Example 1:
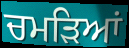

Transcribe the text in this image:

ਚਮੜਿਆਂ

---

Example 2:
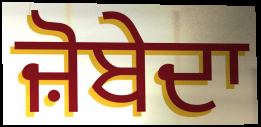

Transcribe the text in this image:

ਜ਼ੋਬੇਦਾ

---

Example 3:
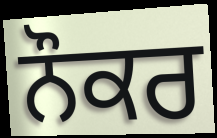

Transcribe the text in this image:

ਨੌਕਰ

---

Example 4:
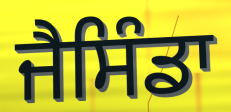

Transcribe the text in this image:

ਜੈਸਿੰਡਾ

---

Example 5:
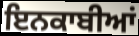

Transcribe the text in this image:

ਇਨਕਾਬੀਆਂ